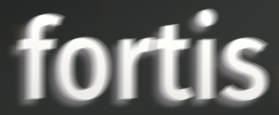
fortis